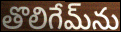
తొలిగేమ్‌ను